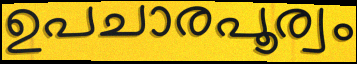
ഉപചാരപൂര്വം